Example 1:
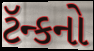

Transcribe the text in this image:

ટૅન્કનો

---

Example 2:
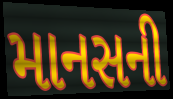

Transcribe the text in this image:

માનસની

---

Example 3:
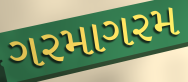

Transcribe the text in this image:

ગરમાગરમ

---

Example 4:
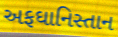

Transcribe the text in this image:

અફઘાનિસ્તાન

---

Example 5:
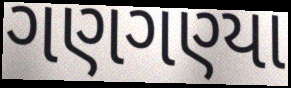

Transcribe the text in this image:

ગણગણ્યા